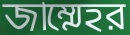
জাম্মেহর